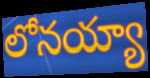
లోనయ్యా